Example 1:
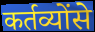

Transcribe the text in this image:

कर्तव्योंसे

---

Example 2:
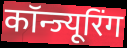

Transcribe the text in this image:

कॉन्ज्यूरिंग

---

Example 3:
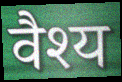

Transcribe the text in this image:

वैश्य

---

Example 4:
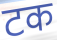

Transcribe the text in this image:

टक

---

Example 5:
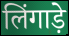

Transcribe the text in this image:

लिंगाड़े